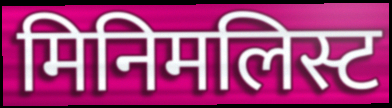
मिनिमलिस्ट